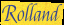
Rolland